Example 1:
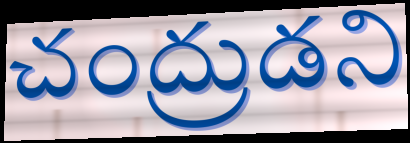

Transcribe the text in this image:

చంద్రుడని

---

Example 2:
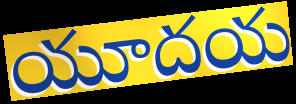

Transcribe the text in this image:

యూదయ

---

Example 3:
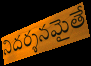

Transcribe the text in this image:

నిదర్శనమైతే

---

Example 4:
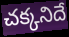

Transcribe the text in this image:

చక్కనిదే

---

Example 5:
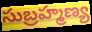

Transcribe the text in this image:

సుబ్రహ్మణ్య